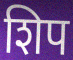
शिप